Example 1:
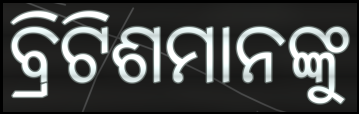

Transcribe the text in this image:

ବ୍ରିଟିଶମାନଙ୍କୁ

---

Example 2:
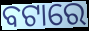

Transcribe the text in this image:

ବଟାରେ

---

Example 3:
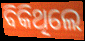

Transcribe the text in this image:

ବିକିଥିଲେ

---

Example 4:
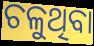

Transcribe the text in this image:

ଚଳୁଥିବା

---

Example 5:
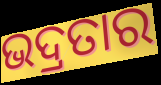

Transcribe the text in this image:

ଭଦ୍ରତାର